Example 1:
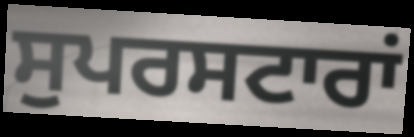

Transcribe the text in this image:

ਸੁਪਰਸਟਾਰਾਂ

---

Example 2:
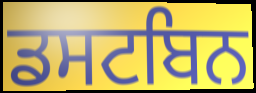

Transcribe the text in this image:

ਡਸਟਬਿਨ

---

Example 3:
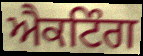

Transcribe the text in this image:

ਐਕਟਿੰਗ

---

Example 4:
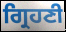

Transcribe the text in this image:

ਗ੍ਰਿਹਣੀ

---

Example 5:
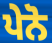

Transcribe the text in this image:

ਪੇਨੋ